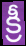
క్రీ